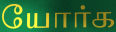
யோர்க